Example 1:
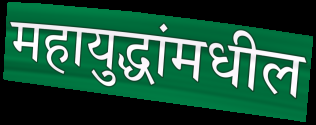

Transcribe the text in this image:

महायुद्धांमधील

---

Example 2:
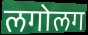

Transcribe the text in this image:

लगोलग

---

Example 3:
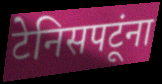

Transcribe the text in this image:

टेनिसपटूंना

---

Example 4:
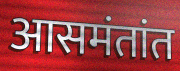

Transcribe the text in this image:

आसमंतांत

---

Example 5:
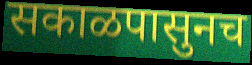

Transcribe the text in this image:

सकाळपासुनच